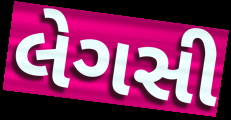
લેગસી